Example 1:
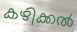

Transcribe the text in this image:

കഴിക്കൽ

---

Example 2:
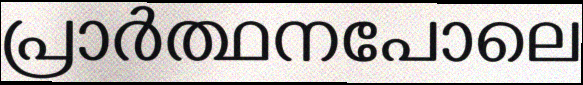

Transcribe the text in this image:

പ്രാർത്ഥനപോലെ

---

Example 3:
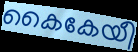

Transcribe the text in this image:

കൈകേയീ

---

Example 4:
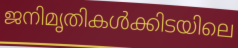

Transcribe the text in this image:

ജനിമൃതികൾക്കിടയിലെ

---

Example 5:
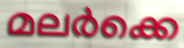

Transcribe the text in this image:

മലർക്കെ